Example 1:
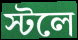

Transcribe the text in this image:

স্টলে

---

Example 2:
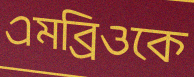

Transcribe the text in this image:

এমব্রিওকে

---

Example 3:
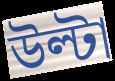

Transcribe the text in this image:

উল্টা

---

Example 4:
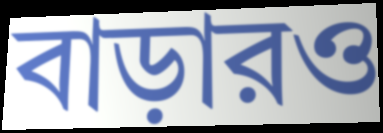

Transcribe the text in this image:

বাড়ারও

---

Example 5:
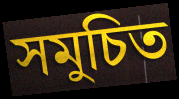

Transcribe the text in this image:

সমুচিত